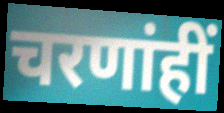
चरणांहीं